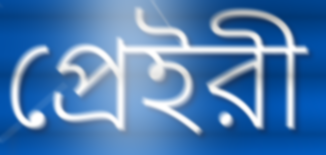
প্রেইরী